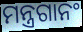
ମନ୍ତ୍ରଗାନଂ